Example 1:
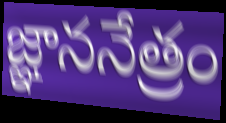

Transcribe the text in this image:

జ్ఞాననేత్రం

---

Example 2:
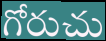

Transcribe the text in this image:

గోరుచు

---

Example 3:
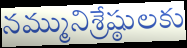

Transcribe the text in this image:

నమ్మునిశ్రేష్ఠులకు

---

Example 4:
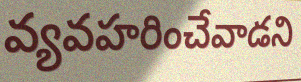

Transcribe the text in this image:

వ్యవహరించేవాడని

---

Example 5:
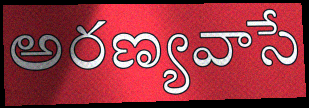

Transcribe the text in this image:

అరణ్యవాసే